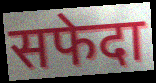
सफेदा